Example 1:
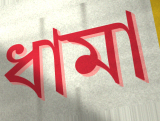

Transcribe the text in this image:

ধামা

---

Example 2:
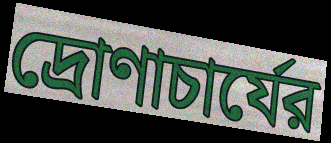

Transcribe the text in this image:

দ্রোণাচার্যের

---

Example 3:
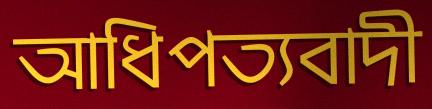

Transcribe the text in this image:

আধিপত্যবাদী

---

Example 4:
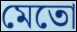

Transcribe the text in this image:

মেতো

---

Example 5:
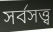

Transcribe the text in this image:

সর্বসত্ত্ব